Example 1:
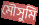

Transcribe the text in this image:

মৌসুমি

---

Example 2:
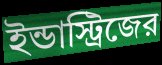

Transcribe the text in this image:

ইন্ডাস্ট্রিজের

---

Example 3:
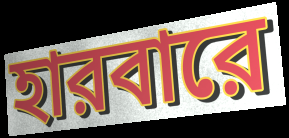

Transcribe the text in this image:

হারবারে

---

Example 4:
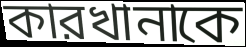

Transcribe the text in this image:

কারখানাকে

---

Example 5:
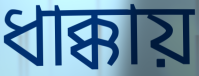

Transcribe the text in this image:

ধাক্কায়